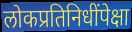
लोकप्रतिनिधींपेक्षा